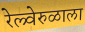
रेल्वेरुळाला